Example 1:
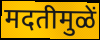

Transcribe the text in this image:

मदतीमुळें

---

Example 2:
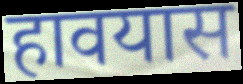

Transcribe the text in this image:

हावयास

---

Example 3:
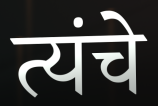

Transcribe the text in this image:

त्यंचे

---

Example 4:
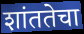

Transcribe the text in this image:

शांततेचा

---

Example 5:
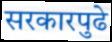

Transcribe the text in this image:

सरकारपुढे